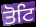
ਤੋਟਿ